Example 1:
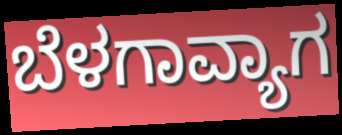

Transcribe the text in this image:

ಬೆಳಗಾವ್ಯಾಗ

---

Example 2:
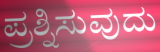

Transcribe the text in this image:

ಪ್ರಶ್ನಿಸುವುದು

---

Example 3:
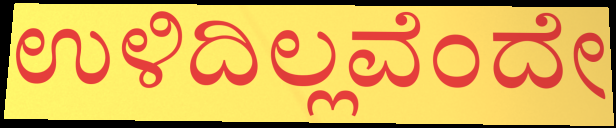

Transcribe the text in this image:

ಉಳಿದಿಲ್ಲವೆಂದೇ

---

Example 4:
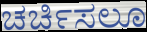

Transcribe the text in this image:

ಚರ್ಚಿಸಲೂ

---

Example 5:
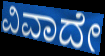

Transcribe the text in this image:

ವಿವಾದೇ